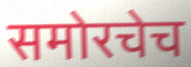
समोरचेच